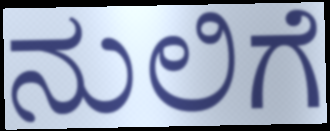
ನುಲಿಗೆ